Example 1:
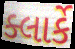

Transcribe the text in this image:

ક્લાર્કે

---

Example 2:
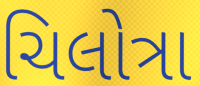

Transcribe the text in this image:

ચિલોત્રા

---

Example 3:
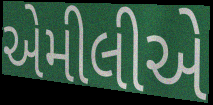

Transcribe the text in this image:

એમીલીએ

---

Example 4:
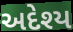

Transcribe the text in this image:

અદેશ્ય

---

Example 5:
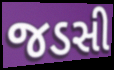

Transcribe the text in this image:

જડસી